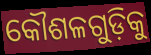
କୌଶଳଗୁଡ଼ିକୁ